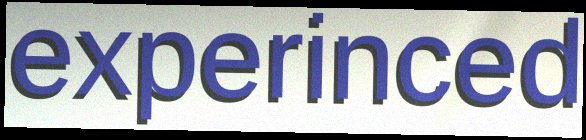
experinced